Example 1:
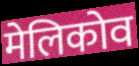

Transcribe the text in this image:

मेलिकोव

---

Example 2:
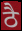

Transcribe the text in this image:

ठै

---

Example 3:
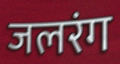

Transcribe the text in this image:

जलरंग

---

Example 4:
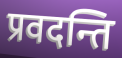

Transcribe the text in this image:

प्रवदन्ति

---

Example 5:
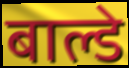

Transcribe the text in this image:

बाल्डे